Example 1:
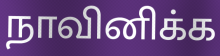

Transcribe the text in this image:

நாவினிக்க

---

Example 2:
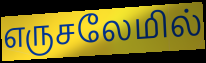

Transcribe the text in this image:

எருசலேமில்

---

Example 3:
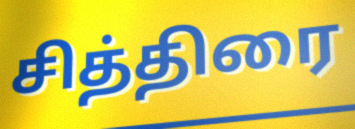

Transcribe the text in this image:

சித்திரை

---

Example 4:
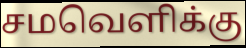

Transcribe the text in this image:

சமவெளிக்கு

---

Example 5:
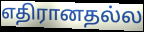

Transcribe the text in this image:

எதிரானதல்ல